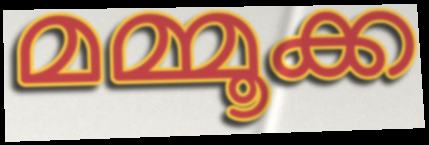
മമ്മൂക്ക